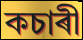
কচাৰী